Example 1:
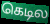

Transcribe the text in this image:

கெடில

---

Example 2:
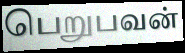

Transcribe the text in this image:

பெறுபவன்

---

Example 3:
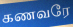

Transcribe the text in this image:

கணவரே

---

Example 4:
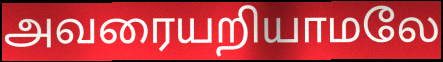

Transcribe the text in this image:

அவரையறியாமலே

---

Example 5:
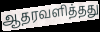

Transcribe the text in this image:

ஆதரவளித்தது